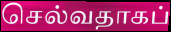
செல்வதாகப்